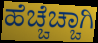
ಹೆಚ್ಚೆಚ್ಚಾಗಿ